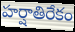
హర్షాతిరేకం